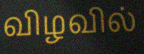
விழவில்